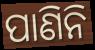
ପାଣିନି